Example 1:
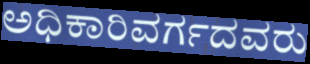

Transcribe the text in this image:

ಅಧಿಕಾರಿವರ್ಗದವರು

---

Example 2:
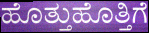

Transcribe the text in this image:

ಹೊತ್ತುಹೊತ್ತಿಗೆ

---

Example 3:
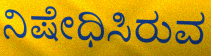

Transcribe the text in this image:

ನಿಷೇಧಿಸಿರುವ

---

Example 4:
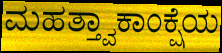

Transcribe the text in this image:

ಮಹತ್ತ್ವಾಕಾಂಕ್ಷೆಯ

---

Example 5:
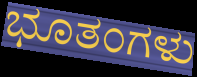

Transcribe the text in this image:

ಭೂತಂಗಳು